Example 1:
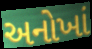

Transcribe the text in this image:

અનોખાં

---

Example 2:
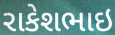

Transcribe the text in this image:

રાકેશભાઇ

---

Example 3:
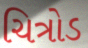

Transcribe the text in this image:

ચિત્રોડ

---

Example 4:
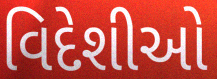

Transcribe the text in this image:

વિદેશીઓ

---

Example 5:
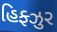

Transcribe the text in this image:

હિફ્ઝુર